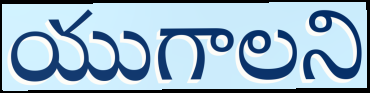
యుగాలని